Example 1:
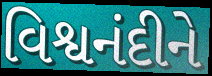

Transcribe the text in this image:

વિશ્વનંદીને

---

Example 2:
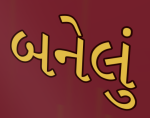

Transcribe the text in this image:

બનેલું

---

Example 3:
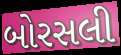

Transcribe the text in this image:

બોરસલી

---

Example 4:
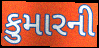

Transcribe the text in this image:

કુમારની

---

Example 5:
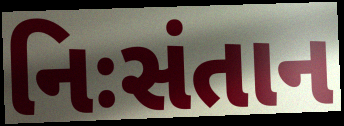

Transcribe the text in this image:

નિઃસંતાન